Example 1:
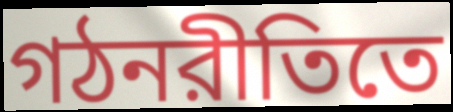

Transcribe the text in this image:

গঠনরীতিতে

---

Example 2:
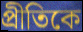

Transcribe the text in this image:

প্রীতিকে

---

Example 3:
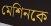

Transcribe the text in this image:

মেশিনকে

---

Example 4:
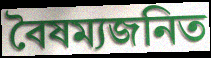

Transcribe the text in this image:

বৈষম্যজনিত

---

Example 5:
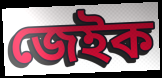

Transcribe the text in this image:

জেইক